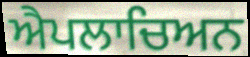
ਐਪਲਾਚਿਅਨ